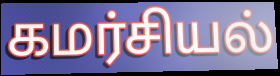
கமர்சியல்